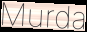
Murda